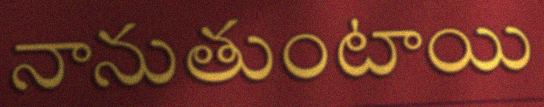
నానుతుంటాయి